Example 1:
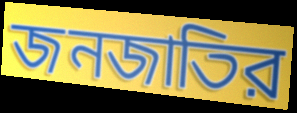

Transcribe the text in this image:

জনজাতির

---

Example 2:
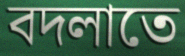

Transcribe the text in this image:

বদলাতে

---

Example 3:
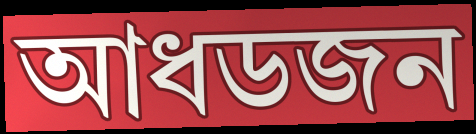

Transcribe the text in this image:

আধডজন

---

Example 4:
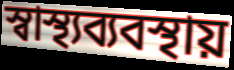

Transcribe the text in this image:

স্বাস্থ্যব্যবস্থায়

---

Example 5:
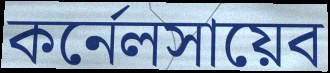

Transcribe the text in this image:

কর্নেলসায়েব